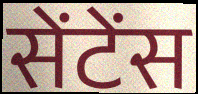
सेंटेंस